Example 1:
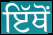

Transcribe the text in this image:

ਇੱਥੋਂ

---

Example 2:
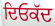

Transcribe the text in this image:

ਦਿਓਕੱਦ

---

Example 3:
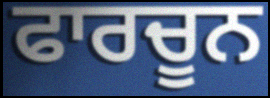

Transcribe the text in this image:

ਫਾਰਚੂਨ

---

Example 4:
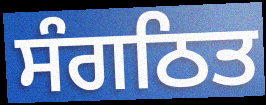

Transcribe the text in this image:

ਸੰਗਠਿਤ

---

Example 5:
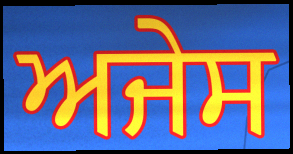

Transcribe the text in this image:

ਅਜੇਸ